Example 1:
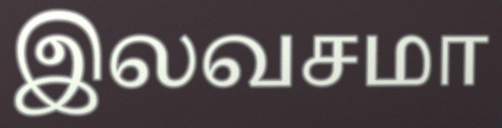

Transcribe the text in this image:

இலவசமா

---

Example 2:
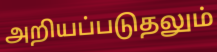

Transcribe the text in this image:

அறியப்படுதலும்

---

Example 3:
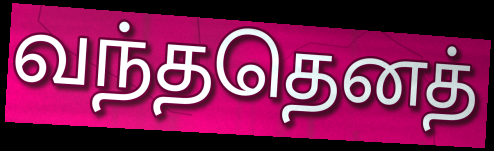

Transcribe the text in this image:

வந்ததெனத்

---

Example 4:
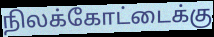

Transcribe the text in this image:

நிலக்கோட்டைக்கு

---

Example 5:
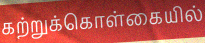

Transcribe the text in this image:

கற்றுக்கொள்கையில்